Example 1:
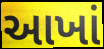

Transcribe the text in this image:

આખાં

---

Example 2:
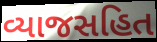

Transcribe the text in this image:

વ્યાજસહિત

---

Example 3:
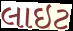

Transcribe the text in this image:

લાઇટ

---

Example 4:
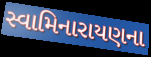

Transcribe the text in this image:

સ્વામિનારાયણના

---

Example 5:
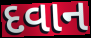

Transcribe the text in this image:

દવાન